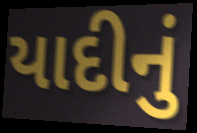
યાદીનું